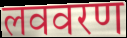
लववरण